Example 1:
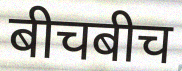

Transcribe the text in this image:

बीचबीच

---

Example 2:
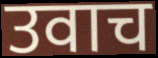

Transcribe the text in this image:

उवाच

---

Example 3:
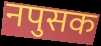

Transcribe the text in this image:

नपुसक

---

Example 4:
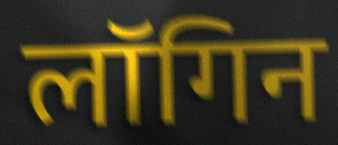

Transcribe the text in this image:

लॉगिन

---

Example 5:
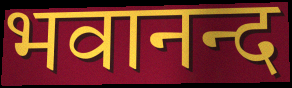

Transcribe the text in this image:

भवानन्द